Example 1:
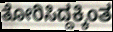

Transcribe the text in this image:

ತೋರಿಸಿದ್ದಕ್ಕಿಂತ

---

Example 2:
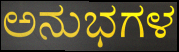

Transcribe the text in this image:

ಅನುಭಗಳ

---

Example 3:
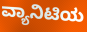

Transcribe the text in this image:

ವ್ಯಾನಿಟಿಯ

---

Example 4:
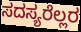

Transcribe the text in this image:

ಸದಸ್ಯರೆಲ್ಲರ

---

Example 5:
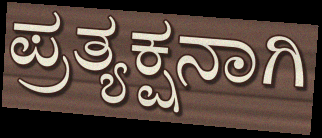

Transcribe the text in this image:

ಪ್ರತ್ಯಕ್ಷನಾಗಿ